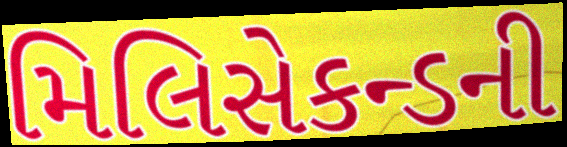
મિલિસેકન્ડની